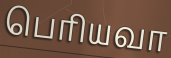
பெரியவா